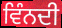
ਵਿੰਨਦੀ